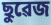
ছুৱেজ